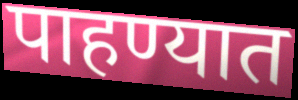
पाहण्यात